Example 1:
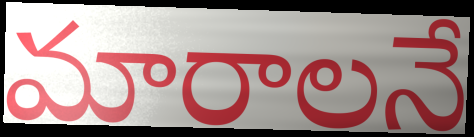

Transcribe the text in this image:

మారాలనే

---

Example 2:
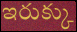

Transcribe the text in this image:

ఇరుక్కు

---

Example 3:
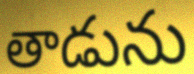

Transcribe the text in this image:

తాడును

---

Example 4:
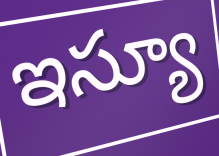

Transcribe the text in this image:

ఇస్యూ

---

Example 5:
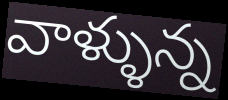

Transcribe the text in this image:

వాళ్ళున్న